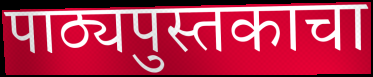
पाठ्यपुस्तकाचा